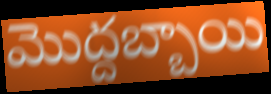
మొద్దబ్బాయి